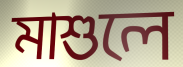
মাশুলে